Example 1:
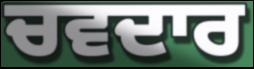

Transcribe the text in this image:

ਚਵਦਾਰ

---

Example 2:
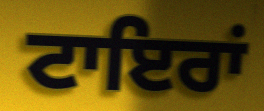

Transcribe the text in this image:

ਟਾਇਰਾਂ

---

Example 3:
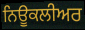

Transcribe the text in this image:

ਨਿਊਕਲੀਅਰ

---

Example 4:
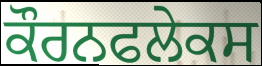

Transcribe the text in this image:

ਕੌਰਨਫਲੇਕਸ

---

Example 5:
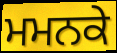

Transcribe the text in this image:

ਮਮਨਕੇ